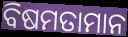
ବିଷମତାମାନ